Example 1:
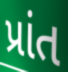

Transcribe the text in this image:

પ્રાંત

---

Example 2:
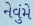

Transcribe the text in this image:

નેવુંમે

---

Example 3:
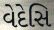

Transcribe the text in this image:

વેદેસિ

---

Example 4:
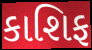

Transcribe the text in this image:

કાશિફ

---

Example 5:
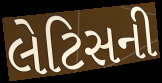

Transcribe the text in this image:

લેટિસની